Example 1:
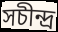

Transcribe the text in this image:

সচীন্দ্র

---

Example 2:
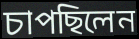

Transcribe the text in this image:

চাপছিলেন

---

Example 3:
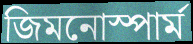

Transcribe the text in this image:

জিমনোস্পার্ম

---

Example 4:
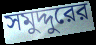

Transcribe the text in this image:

সমুদ্দুরের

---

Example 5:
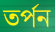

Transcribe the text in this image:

তর্পন